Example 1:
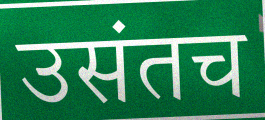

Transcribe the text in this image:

उसंतच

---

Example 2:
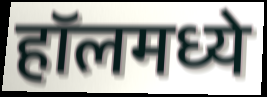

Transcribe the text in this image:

हॉलमध्ये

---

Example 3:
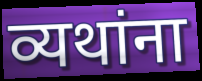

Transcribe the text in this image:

व्यथांना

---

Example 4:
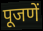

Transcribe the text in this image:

पूजणें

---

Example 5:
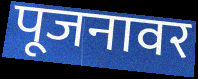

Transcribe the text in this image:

पूजनावर